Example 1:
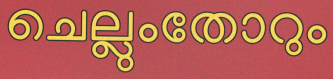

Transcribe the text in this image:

ചെല്ലുംതോറും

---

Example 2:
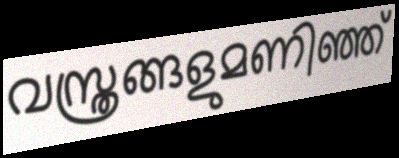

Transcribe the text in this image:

വസ്ത്രങ്ങളുമണിഞ്ഞ്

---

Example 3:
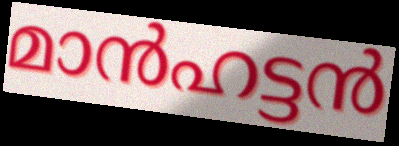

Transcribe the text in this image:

മാൻഹട്ടൻ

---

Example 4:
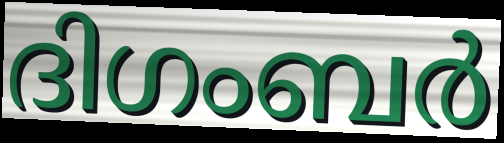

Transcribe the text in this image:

ദിഗംബർ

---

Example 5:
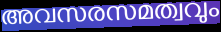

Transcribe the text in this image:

അവസരസമത്വവും